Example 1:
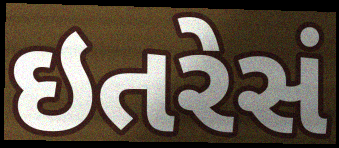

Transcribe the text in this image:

ઇતરેસં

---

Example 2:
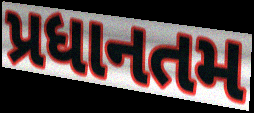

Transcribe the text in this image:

પ્રધાનતમ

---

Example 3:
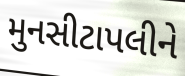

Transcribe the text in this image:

મુનસીટાપલીને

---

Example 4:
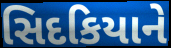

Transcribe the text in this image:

સિદકિયાને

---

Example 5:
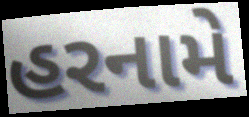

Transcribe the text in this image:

હરનામે